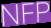
NFP